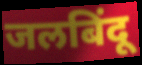
जलबिंदू